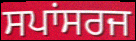
ਸਪਾਂਸਰਜ